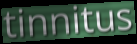
tinnitus